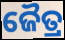
ଜୈତ୍ର